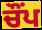
ਚੌਂਪ